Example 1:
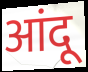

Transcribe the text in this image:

आंदू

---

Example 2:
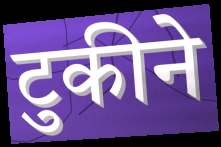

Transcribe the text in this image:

टुकीने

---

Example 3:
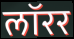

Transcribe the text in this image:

लॉरर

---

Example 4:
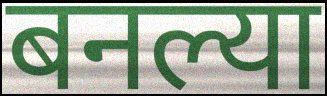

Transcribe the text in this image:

बनल्या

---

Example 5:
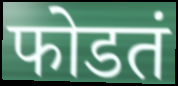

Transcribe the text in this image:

फोडतं